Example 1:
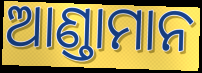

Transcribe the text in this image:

ଆଣ୍ଡାମାନ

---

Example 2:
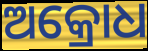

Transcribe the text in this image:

ଅକ୍ରୋଧ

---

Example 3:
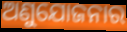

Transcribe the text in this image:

ଅଣୁଯୋଜନାର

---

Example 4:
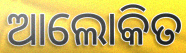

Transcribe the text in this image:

ଆଲୋକିତ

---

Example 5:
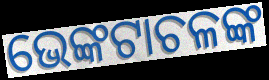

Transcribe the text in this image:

ଭେଙ୍କଟାଚଳଙ୍କ